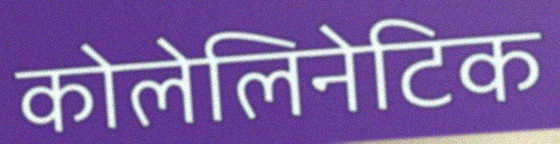
कोलेलिनेटिक